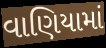
વાણિયામાં